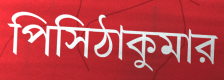
পিসিঠাকুমার